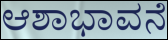
ಆಶಾಭಾವನೆ